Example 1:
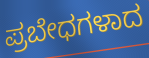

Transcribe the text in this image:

ಪ್ರಬೇಧಗಳಾದ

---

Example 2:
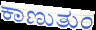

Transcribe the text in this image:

ಕಾಣುತುಂ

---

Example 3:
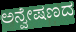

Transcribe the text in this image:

ಅನ್ವೇಷಣದ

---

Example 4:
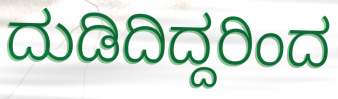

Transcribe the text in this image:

ದುಡಿದಿದ್ದರಿಂದ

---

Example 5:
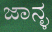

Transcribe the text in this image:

ಜಾನ್ಳ